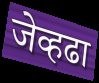
जेव्हढा